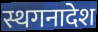
स्थगनादेश